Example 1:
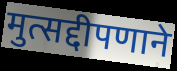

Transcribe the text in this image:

मुत्सद्दीपणाने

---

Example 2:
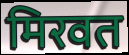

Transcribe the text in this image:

मिरवत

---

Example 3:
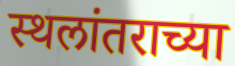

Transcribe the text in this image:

स्थलांतराच्या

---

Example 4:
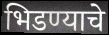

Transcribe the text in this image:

भिडण्याचे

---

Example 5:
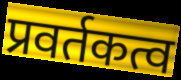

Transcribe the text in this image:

प्रवर्तकत्व